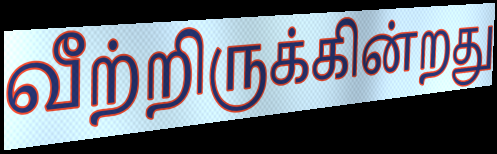
வீற்றிருக்கின்றது